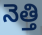
నెత్తి